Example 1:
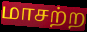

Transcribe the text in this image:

மாசற்ற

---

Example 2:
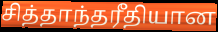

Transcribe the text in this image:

சித்தாந்தரீதியான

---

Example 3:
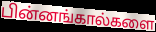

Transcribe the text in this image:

பின்னங்கால்களை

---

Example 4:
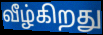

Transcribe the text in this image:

வீழ்கிறது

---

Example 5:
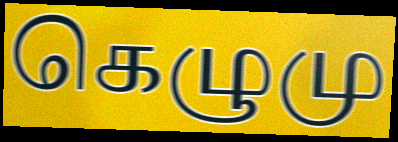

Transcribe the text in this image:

கெழுமு